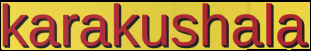
karakushala